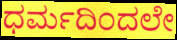
ಧರ್ಮದಿಂದಲೇ